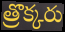
త్రొక్కరు